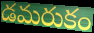
డమరుకం